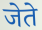
जेते